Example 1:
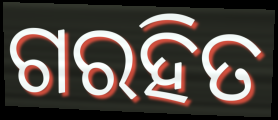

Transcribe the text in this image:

ଗରହିତ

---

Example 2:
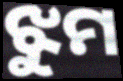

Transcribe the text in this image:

ଝୁମ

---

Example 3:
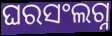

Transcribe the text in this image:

ଘରସଂଲଗ୍ନ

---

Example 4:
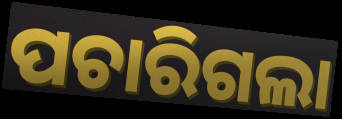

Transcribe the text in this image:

ପଚାରିଗଲା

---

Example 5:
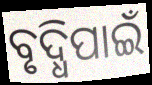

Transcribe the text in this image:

ବୃଦ୍ଧିପାଇଁ